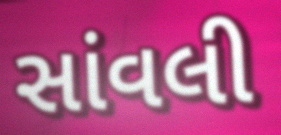
સાંવલી